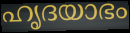
ഹൃദയാഭം